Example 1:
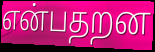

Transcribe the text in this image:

என்பதறன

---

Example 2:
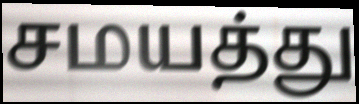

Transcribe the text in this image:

சமயத்து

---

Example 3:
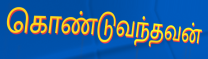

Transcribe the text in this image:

கொண்டுவந்தவன்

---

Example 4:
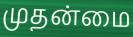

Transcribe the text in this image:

முதன்மை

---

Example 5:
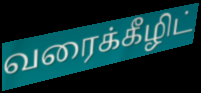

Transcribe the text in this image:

வரைக்கீழிட்